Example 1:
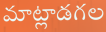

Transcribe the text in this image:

మాట్లాడగల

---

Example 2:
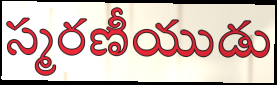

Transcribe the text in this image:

స్మరణీయుడు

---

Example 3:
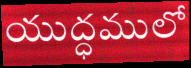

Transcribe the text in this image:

యుద్ధములో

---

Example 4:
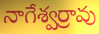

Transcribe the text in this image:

నాగేశ్వర్రావు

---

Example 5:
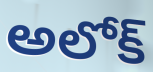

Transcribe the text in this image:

అలోక్